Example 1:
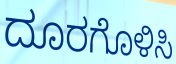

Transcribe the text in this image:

ದೂರಗೊಳಿಸಿ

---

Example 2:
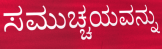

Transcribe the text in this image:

ಸಮುಚ್ಚಯವನ್ನು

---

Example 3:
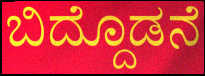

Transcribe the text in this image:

ಬಿದ್ದೊಡನೆ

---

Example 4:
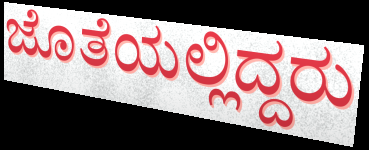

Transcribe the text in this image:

ಜೊತೆಯಲ್ಲಿದ್ದರು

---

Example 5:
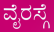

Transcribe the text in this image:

ವೈರಸ್ಗೆ